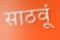
साठवूं